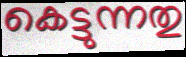
കെട്ടുന്നതു